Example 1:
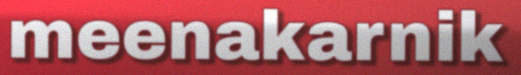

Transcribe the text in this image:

meenakarnik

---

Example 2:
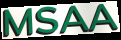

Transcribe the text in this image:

MSAA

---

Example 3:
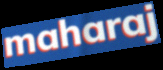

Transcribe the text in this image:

maharaj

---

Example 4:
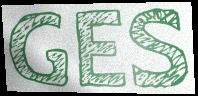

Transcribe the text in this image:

GES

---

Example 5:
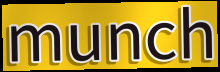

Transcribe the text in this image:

munch